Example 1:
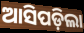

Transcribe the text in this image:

ଆସିପଡ଼ିଲା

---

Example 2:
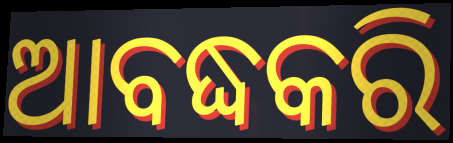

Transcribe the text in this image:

ଆବଦ୍ଧକରି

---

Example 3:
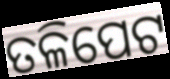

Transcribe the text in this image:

ତଳିପେଟ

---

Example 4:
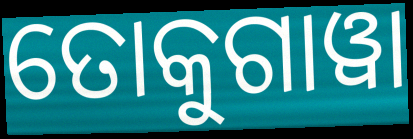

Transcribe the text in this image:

ତୋକୁଗାୱା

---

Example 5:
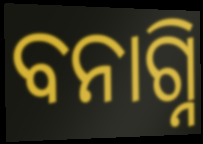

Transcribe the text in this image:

ବନାଗ୍ନି